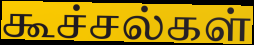
கூச்சல்கள்